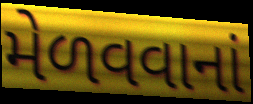
મેળવવાનાં